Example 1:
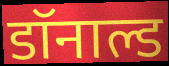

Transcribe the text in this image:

डॉनाल्ड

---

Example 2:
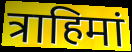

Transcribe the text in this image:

त्राहिमां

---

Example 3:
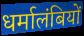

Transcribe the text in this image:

धर्मालंबियों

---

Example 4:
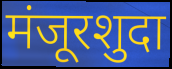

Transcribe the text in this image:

मंजूरशुदा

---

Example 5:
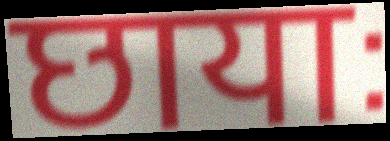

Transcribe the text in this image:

छायाः